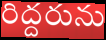
రిద్దరును